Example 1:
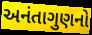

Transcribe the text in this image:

અનંતાગુણનો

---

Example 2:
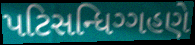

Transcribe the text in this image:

પટિસન્ધિગ્ગહણે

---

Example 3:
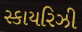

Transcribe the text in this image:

સ્કાયરિઝી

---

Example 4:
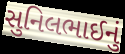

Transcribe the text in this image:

સુનિલભાઈનું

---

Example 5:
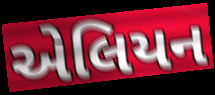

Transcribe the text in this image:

એલિયન